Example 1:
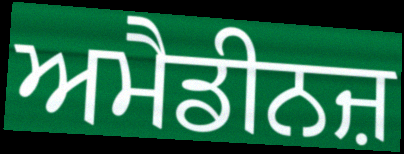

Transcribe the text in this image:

ਅਮੈਡੀਨਜ਼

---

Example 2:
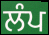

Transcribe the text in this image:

ਲੰਪ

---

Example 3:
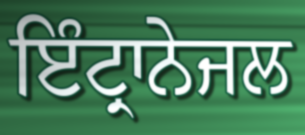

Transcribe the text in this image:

ਇੰਟ੍ਰਾਨੇਜਲ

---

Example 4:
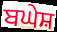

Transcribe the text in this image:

ਬਘੇਸ਼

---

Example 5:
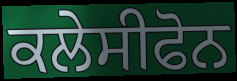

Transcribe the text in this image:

ਕਲੇਸੀਫੋਨ